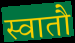
स्वातौ